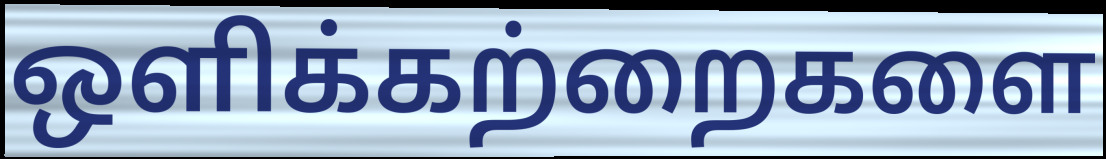
ஒளிக்கற்றைகளை